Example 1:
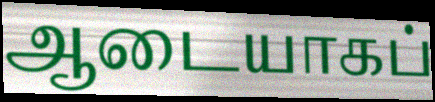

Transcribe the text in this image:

ஆடையாகப்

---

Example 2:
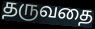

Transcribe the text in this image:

தருவதை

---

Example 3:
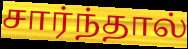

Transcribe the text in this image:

சார்ந்தால்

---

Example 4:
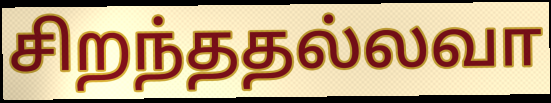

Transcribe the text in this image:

சிறந்ததல்லவா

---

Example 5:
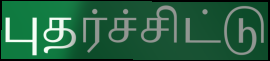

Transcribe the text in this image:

புதர்ச்சிட்டு